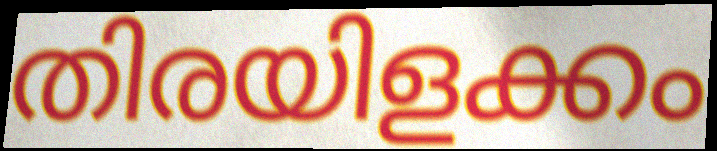
തിരയിളക്കം